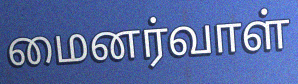
மைனர்வாள்